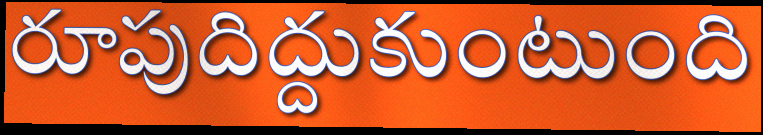
రూపుదిద్దుకుంటుంది